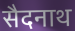
सैदनाथ